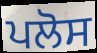
ਪਲੋਸ